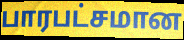
பாரபட்சமான